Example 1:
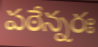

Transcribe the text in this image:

పఠేన్నరః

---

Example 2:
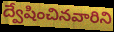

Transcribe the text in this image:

ద్వేషించినవారిని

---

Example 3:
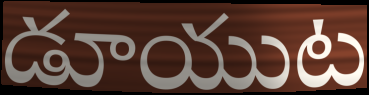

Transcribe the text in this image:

డూయుట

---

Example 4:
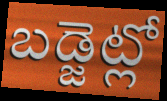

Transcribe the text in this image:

బడ్జెట్లో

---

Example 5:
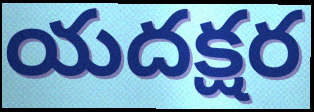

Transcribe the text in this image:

యదక్షర